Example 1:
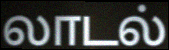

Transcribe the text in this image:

லாடல்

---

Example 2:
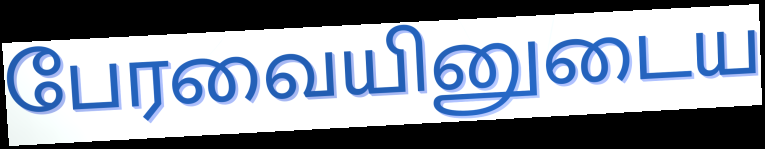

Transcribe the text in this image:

பேரவையினுடைய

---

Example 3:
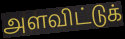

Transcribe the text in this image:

அளவிட்டுக்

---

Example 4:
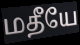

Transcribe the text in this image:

மதீயே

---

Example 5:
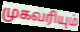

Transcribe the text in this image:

முகவரியும்